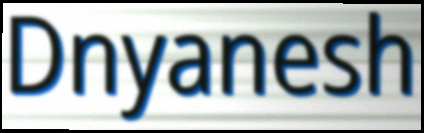
Dnyanesh